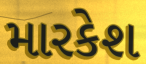
મારકેશ